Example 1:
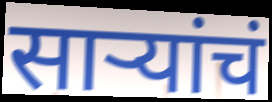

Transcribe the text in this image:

साऱ्यांचं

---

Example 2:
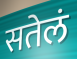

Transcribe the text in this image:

सतेलं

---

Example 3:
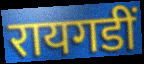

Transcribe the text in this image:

रायगडीं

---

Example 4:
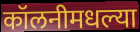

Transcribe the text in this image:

कॉलनीमधल्या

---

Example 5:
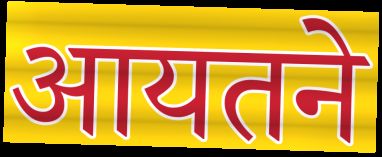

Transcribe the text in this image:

आयतने